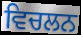
ਵਿਚਲਨ